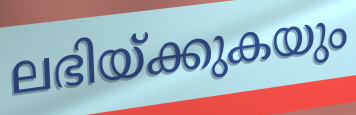
ലഭിയ്ക്കുകയും